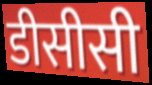
डीसीसी